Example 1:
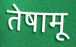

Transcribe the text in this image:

तेषामू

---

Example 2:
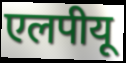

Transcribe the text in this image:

एलपीयू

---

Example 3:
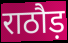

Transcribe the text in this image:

राठौड़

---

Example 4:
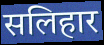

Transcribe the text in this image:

सलिहार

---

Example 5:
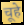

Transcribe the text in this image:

चूहे